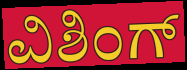
ವಿಶಿಂಗ್